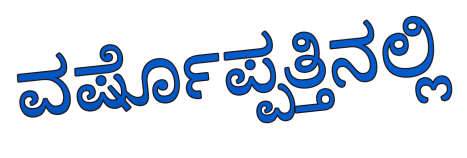
ವರ್ಷೊಪ್ಪತ್ತಿನಲ್ಲಿ